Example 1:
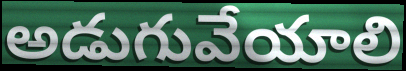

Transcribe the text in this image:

అడుగువేయాలి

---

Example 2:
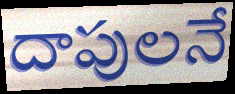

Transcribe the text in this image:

దాపులనే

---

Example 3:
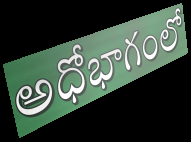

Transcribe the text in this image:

అధోభాగంలో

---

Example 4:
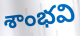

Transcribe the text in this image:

శాంభవి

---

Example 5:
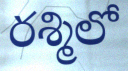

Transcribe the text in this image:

రశ్మిలో